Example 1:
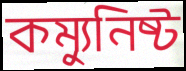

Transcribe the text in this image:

কম্যুনিষ্ট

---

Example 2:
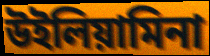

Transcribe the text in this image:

উইলিয়ামিনা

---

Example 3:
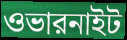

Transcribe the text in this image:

ওভারনাইট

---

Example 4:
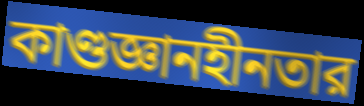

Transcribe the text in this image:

কাণ্ডজ্ঞানহীনতার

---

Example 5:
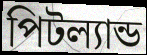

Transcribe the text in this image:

পিটল্যান্ড